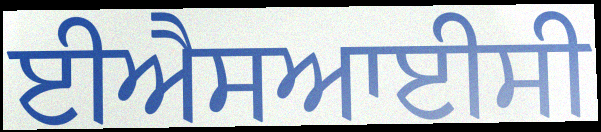
ਈਐਸਆਈਸੀ